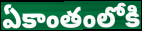
ఏకాంతంలోకి